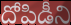
దోపిడీని